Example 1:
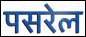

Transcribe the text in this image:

पसरेल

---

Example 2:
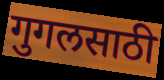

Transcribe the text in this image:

गुगलसाठी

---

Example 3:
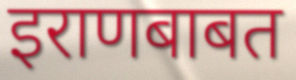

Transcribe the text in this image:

इराणबाबत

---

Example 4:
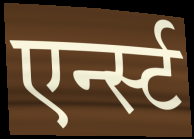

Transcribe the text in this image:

एर्न्स्ट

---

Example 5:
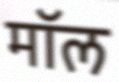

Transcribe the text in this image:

मॉल